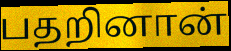
பதறினான்